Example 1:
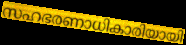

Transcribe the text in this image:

സഹഭരണാധികാരിയായി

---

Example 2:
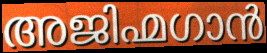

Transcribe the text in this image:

അജിഹ്മഗാൻ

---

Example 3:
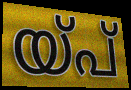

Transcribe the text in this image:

യ്പ്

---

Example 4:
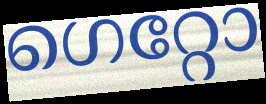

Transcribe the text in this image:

ഗെറ്റോ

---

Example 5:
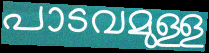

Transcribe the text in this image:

പാടവമുള്ള